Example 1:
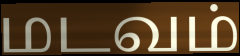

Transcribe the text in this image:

மடவம்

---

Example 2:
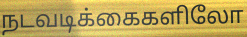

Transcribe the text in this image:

நடவடிக்கைகளிலோ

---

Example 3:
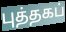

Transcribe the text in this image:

புத்தகப்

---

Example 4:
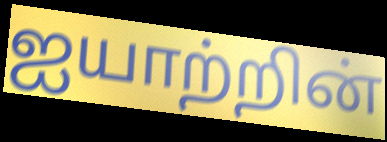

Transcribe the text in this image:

ஐயாற்றின்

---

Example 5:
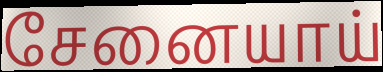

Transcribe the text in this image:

சேனையாய்